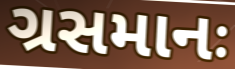
ગ્રસમાનઃ